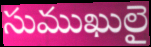
సుముఖులై